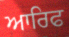
ਆਰਿਫ